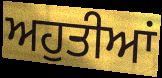
ਅਹੁਤੀਆਂ